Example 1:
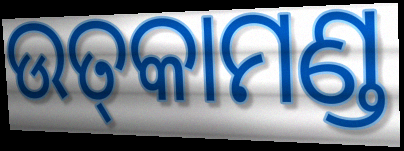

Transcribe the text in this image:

ଉତ୍‌କାମଣ୍ଡ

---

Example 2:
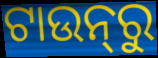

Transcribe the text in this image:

ଟାଉନ୍‌ରୁ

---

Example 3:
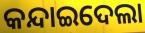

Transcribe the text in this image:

କନ୍ଦାଇଦେଲା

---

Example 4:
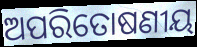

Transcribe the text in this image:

ଅପରିତୋଷଣୀୟ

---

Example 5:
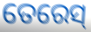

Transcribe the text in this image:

ତେରେସ୍